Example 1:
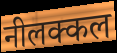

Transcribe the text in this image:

नीलक्कल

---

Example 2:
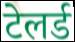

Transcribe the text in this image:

टेलर्ड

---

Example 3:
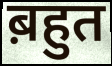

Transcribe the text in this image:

ब़हुत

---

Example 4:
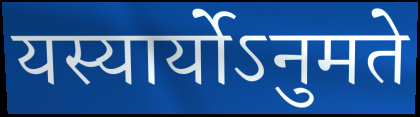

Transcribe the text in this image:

यस्यार्योऽनुमते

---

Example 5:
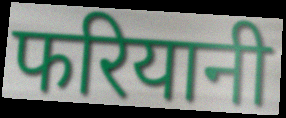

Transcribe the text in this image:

फरियानी